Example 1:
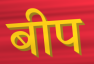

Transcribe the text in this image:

बीप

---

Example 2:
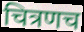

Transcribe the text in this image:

चित्रणच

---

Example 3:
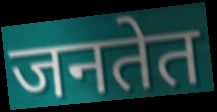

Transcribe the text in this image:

जनतेत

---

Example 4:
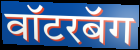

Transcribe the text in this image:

वॉटरबॅग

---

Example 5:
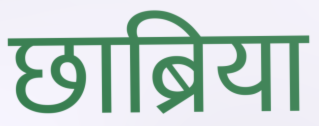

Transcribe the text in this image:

छाब्रिया